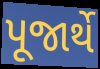
પૂજાર્થે